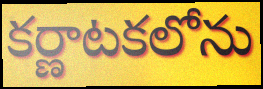
కర్ణాటకలోను